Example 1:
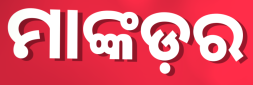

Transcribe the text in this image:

ମାଙ୍କଡ଼ର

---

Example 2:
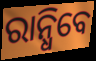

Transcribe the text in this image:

ରାନ୍ଧିବେ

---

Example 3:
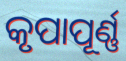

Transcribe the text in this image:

କୃପାପୂର୍ଣ୍ଣ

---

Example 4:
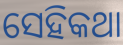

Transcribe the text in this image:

ସେହିକଥା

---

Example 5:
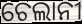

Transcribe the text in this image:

ଚେଲାନୀ